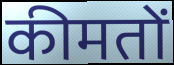
कीमतों